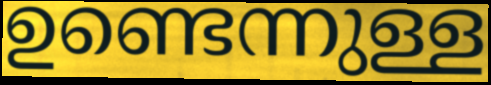
ഉണ്ടെന്നുള്ള